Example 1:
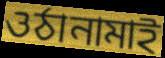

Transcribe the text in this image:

ওঠানামাই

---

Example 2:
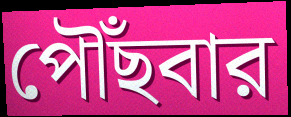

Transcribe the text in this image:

পৌঁছবার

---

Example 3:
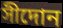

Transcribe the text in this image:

সীদোন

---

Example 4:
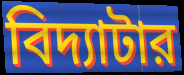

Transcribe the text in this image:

বিদ্যাটার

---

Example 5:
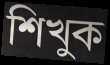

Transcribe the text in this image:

শিখুক